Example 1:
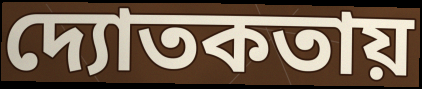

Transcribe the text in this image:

দ্যোতকতায়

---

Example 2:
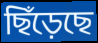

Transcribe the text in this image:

ছিঁড়েছে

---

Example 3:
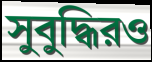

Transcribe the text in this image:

সুবুদ্ধিরও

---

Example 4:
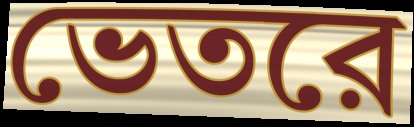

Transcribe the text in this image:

ভেতরে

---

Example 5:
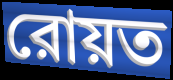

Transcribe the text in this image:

রোয়ত